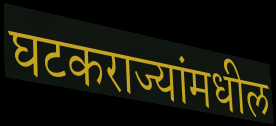
घटकराज्यांमधील